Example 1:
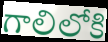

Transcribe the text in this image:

గాలిలోకి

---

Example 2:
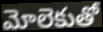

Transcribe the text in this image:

మోలెకుతో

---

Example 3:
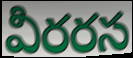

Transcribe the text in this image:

వీరరస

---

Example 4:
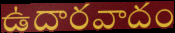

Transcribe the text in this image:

ఉదారవాదం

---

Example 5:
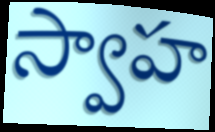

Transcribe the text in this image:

స్వాహ